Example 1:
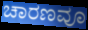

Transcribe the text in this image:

ಚಾರಣವೂ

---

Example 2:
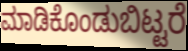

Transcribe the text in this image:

ಮಾಡಿಕೊಂಡುಬಿಟ್ಟರೆ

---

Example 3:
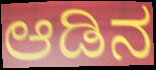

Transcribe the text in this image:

ಆಡಿನ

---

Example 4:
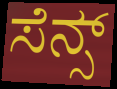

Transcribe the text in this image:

ಸೆನ್ಸ್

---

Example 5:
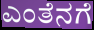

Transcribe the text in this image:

ಎಂತೆನಗೆ